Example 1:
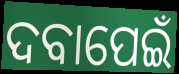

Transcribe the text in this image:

ଦବାପେଇଁ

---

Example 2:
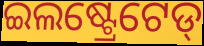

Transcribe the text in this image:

ଇଲଷ୍ଟ୍ରେଟେଡ୍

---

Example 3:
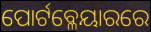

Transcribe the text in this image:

ପୋର୍ଟବ୍ଳେୟାରରେ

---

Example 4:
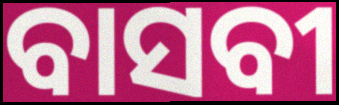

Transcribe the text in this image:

ବାସବୀ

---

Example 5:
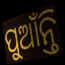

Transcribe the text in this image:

ପୁଆଁନ୍ତି